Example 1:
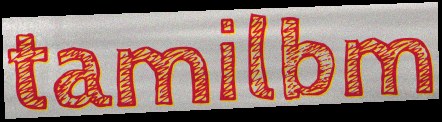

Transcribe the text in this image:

tamilbm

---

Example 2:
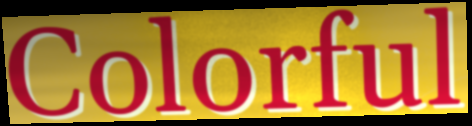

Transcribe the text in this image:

Colorful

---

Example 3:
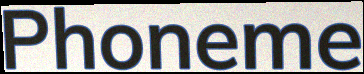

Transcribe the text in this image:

Phoneme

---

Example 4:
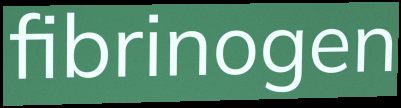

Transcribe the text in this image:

fibrinogen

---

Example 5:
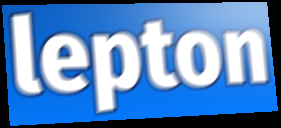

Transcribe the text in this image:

lepton